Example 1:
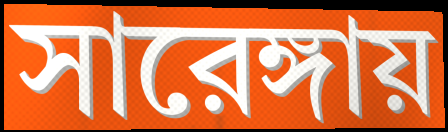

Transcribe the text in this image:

সারেঙ্গায়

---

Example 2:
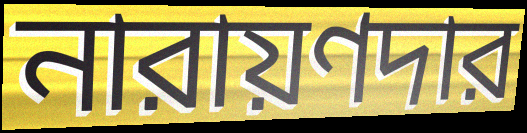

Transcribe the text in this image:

নারায়ণদার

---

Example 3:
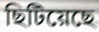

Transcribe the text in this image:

ছিটিয়েছে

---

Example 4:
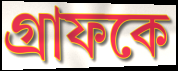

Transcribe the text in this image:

গ্রাফকে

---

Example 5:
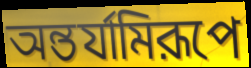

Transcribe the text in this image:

অন্তর্যামিরূপে